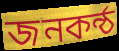
জনকন্ঠ